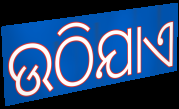
ଉଠିଯାଏ